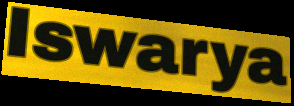
Iswarya